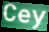
Cey